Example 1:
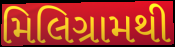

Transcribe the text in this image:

મિલિગ્રામથી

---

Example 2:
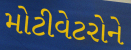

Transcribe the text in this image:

મોટીવેટરોને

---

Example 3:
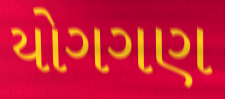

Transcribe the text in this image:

યોગગણ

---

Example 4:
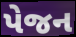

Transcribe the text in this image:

પેજન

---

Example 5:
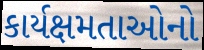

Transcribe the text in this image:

કાર્યક્ષમતાઓનો